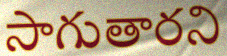
సాగుతారని